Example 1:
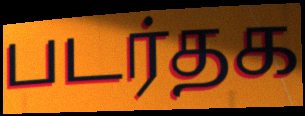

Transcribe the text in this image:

படர்தக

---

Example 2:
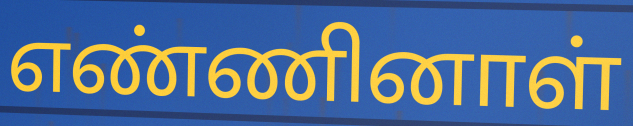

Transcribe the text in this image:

எண்ணினாள்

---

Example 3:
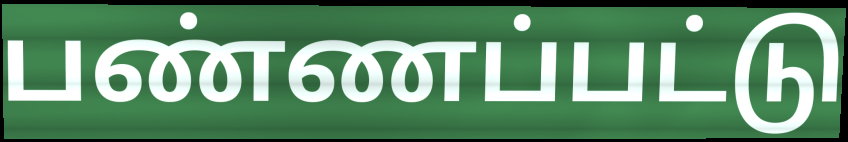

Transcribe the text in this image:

பண்ணப்பட்டு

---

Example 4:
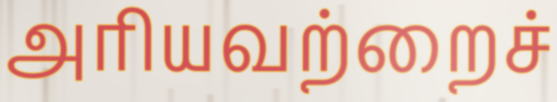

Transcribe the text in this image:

அரியவற்றைச்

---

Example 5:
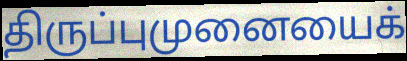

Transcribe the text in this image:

திருப்புமுனையைக்